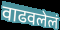
वाढवलेलं